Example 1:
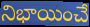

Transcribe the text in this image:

నిభాయించే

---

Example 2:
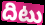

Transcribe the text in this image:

దిటు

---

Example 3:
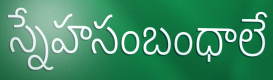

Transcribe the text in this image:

స్నేహసంబంధాలే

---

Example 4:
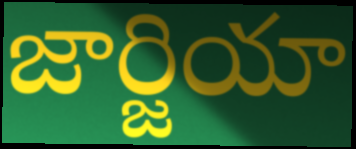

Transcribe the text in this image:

జార్జియా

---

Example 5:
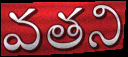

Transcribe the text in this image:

వతని